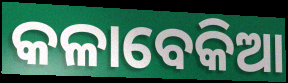
କଳାବେକିଆ